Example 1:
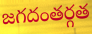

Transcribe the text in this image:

జగదంతర్గత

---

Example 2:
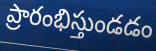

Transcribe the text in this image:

ప్రారంభిస్తుండడం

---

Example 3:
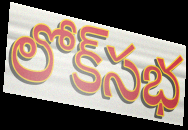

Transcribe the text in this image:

లోక్‌సభ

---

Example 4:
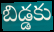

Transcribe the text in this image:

బిడ్డకు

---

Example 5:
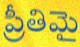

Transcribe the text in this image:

ప్రీతిమై